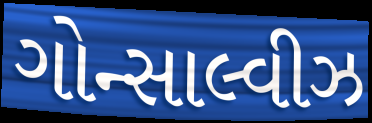
ગોન્સાલ્વીઝ